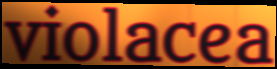
violacea